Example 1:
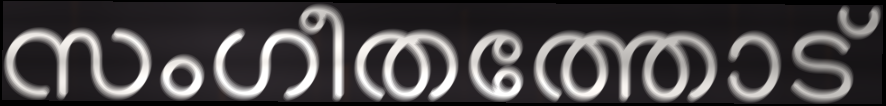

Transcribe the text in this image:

സംഗീതത്തോട്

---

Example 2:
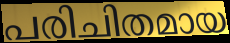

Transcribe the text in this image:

പരിചിതമായ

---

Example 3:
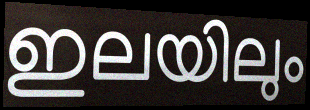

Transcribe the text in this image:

ഇലയിലും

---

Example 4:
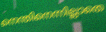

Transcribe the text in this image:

നെന്തിനെന്നില്ലാതെ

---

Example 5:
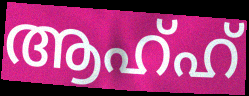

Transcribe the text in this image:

ആഹ്ഹ്